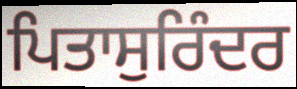
ਪਿਤਾਸੁਰਿੰਦਰ